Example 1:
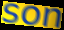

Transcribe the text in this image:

son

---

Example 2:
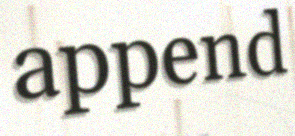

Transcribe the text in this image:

append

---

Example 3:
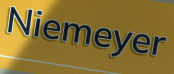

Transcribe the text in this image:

Niemeyer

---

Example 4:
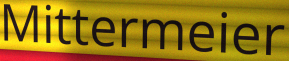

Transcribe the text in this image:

Mittermeier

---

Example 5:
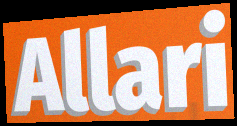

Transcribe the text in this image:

Allari